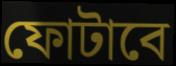
ফোটাবে